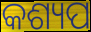
କଶ୍ୟପ